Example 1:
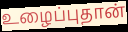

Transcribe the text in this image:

உழைப்புதான்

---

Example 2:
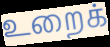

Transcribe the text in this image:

உறைக்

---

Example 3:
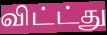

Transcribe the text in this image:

விட்ட்து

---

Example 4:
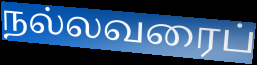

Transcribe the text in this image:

நல்லவரைப்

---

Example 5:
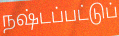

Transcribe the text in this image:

நஷ்டப்பட்டுப்